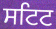
ਸਟਿਟ